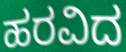
ಹರವಿದ